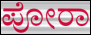
ಪೋರಾ